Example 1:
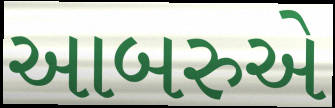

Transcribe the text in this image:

આબરુએ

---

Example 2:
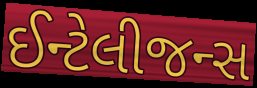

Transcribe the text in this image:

ઈન્ટેલીજન્સ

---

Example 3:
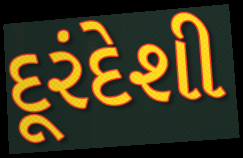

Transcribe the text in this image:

દૂરંદેશી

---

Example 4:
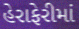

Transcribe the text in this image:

હેરાફેરીમાં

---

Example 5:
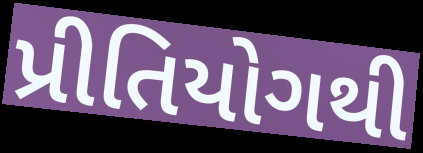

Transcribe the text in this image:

પ્રીતિયોગથી